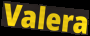
Valera